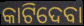
କାଟିଦେବା